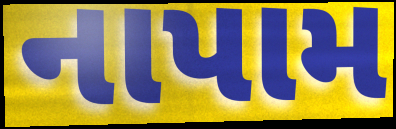
નાપામ